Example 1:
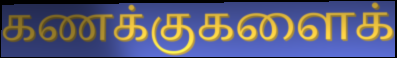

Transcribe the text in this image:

கணக்குகளைக்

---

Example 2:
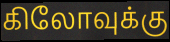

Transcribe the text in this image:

கிலோவுக்கு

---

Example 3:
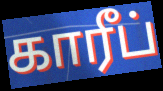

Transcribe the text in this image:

காரீப்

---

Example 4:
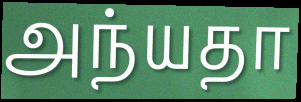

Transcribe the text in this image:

அந்யதா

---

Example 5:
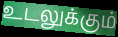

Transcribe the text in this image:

உடலுக்கும்